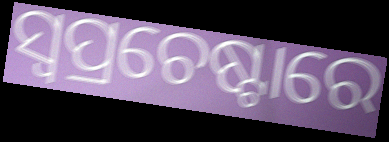
ସ୍ଵପ୍ରଚେଷ୍ଟାରେ